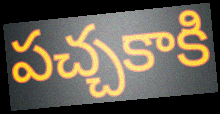
పచ్చకాకి